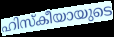
ഹിസ്കീയായുടെ